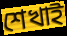
শেখাই